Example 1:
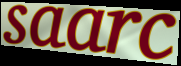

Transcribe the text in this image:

saarc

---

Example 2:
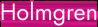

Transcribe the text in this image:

Holmgren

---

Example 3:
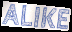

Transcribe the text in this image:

ALIKE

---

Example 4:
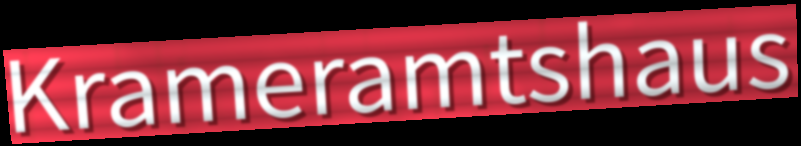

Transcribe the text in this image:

Krameramtshaus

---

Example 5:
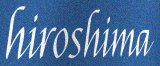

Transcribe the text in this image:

hiroshima